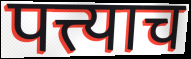
पत्त्याच